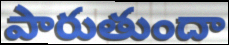
పారుతుందా